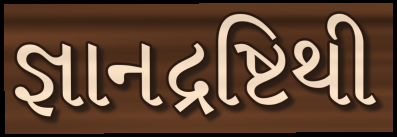
જ્ઞાનદ્રષ્ટિથી